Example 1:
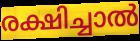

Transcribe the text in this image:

രക്ഷിച്ചാൽ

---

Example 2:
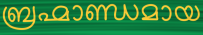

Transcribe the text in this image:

ബ്രഹ്മാണ്ഡമായ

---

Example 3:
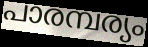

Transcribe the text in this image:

പാരമ്പര്യം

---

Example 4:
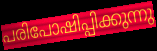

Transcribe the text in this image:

പരിപോഷിപ്പിക്കുന്നു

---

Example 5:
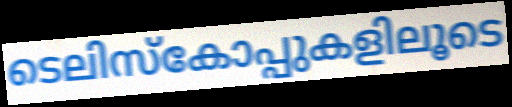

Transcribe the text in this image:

ടെലിസ്കോപ്പുകളിലൂടെ